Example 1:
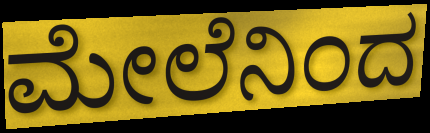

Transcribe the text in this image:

ಮೇಲೆನಿಂದ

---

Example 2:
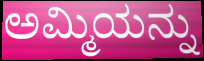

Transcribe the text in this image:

ಅಮ್ಮಿಯನ್ನು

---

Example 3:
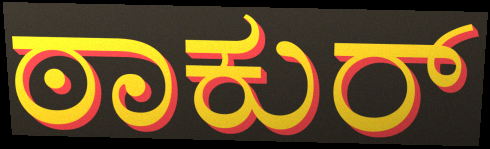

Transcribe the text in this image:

ಠಾಕುರ್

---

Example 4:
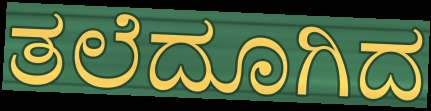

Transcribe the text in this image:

ತಲೆದೂಗಿದ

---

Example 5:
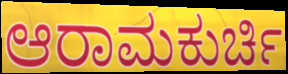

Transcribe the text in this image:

ಆರಾಮಕುರ್ಚಿ